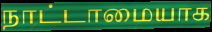
நாட்டாமையாக